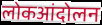
लोकआंदोलन